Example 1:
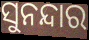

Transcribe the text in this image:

ସୁନନ୍ଦାର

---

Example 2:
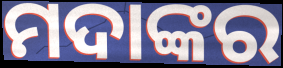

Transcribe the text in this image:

ମଦାଙ୍କର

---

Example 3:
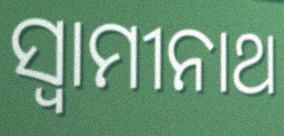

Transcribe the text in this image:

ସ୍ୱାମୀନାଥ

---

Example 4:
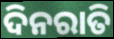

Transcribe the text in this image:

ଦିନରାତି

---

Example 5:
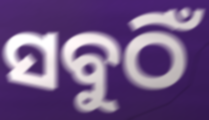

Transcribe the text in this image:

ସବୁଠିଁ